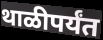
थाळीपर्यंत